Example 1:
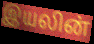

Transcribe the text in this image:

இயலின்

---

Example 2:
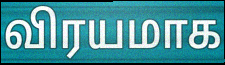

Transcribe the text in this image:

விரயமாக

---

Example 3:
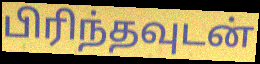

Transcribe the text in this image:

பிரிந்தவுடன்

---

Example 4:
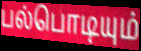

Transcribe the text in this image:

பல்பொடியும்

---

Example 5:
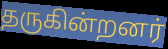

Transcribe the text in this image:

தருகின்றனர்